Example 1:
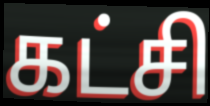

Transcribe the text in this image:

கட்சி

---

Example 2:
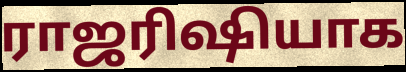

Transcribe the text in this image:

ராஜரிஷியாக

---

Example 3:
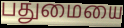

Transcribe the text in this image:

பதுமையை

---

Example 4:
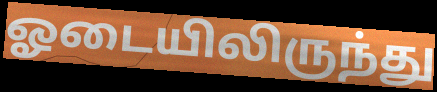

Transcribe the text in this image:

ஓடையிலிருந்து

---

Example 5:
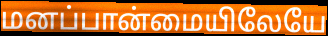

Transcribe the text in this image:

மனப்பான்மையிலேயே